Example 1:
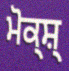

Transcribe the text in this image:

ਮੋਕ੍ਸ਼੍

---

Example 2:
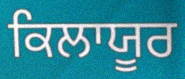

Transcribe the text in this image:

ਕਿਲਾਯੂਰ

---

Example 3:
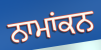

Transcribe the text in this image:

ਨਾਮਾਂਕਨ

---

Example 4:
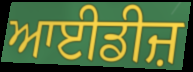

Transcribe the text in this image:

ਆਈਡੀਜ਼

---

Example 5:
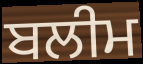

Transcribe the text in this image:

ਬਲੀਮ